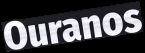
Ouranos